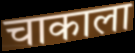
चाकाला